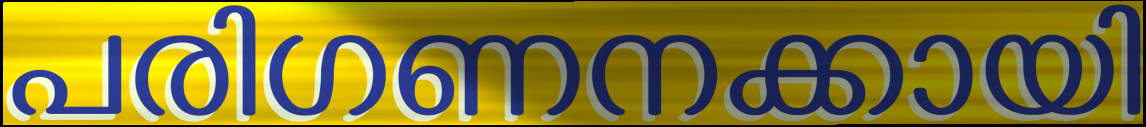
പരിഗണനക്കായി